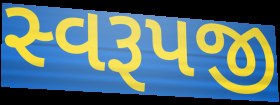
સ્વરૂપજી